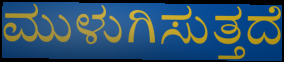
ಮುಳುಗಿಸುತ್ತದೆ